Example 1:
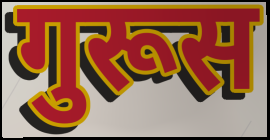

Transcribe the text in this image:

गुरूस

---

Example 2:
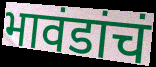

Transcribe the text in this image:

भावंडांचं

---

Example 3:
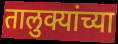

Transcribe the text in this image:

तालुक्यांच्या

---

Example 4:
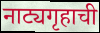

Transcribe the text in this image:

नाट्यगृहाची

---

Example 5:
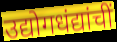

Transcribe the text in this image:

उद्योगधंद्यांचीं